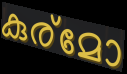
കുര്മോ